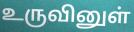
உருவினுள்